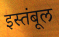
इस्तंबूल